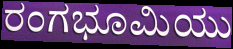
ರಂಗಭೂಮಿಯು